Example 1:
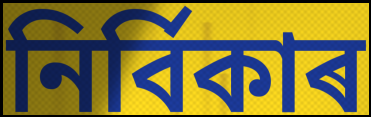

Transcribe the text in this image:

নিৰ্বিকাৰ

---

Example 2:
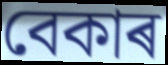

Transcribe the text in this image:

বেকাৰ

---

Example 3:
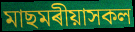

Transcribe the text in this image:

মাছমৰীয়াসকল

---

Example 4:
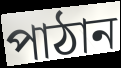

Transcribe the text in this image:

পাঠান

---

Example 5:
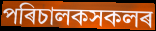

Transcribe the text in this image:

পৰিচালকসকলৰ